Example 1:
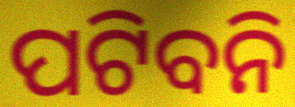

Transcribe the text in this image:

ପଟିବନି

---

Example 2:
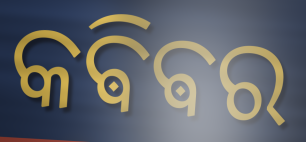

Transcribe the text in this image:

କଵିଵର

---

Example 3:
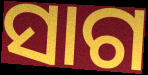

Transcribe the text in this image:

ସାଗ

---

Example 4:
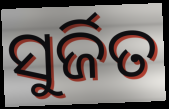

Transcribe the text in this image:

ସୁର୍ଜିତ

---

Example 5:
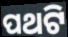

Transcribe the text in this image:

ପଥଟି